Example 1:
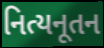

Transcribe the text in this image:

નિત્યનૂતન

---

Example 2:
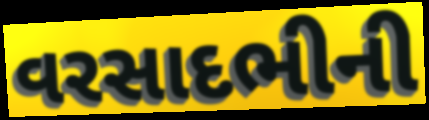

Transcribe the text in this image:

વરસાદભીની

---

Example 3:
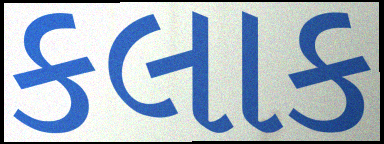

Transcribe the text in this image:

કલાક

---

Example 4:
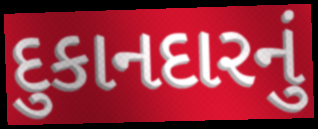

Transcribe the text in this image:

દુકાનદારનું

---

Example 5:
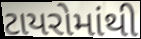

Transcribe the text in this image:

ટાયરોમાંથી